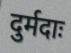
दुर्मदाः